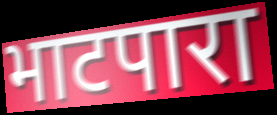
भाटपारा